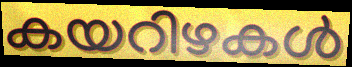
കയറിഴകൾ